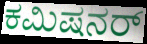
ಕಮಿಷನರ್